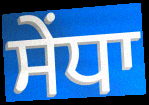
ਸੇਂਧਾ